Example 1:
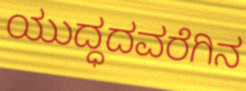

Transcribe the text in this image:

ಯುದ್ಧದವರೆಗಿನ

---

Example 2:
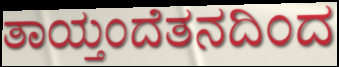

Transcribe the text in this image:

ತಾಯ್ತಂದೆತನದಿಂದ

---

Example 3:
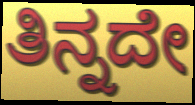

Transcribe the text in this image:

ತಿನ್ನದೇ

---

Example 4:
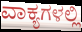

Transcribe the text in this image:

ವಾಕ್ಯಗಳಲ್ಲಿ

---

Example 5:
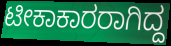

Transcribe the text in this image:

ಟೀಕಾಕಾರರಾಗಿದ್ದ